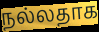
நல்லதாக